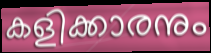
കളിക്കാരനും